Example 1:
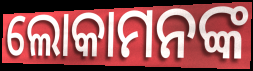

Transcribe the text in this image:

ଲୋକାମନଙ୍କ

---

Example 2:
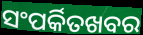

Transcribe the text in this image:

ସଂପର୍କିତଖବର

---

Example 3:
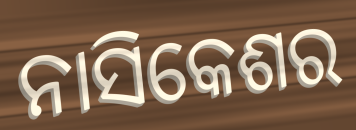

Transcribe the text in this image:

ନାସିକେଶର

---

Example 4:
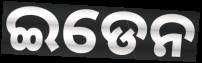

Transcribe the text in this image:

ଇଡେନ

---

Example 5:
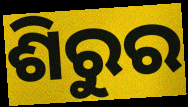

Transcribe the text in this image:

ଶିରୁର